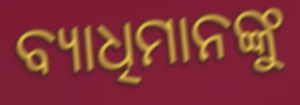
ବ୍ୟାଧିମାନଙ୍କୁ